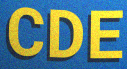
CDE